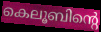
കെലൂബിന്റെ